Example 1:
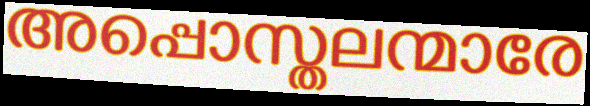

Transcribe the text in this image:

അപ്പൊസ്തലന്മാരേ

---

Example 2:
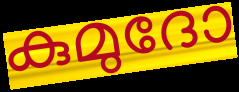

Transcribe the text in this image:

കുമുദോ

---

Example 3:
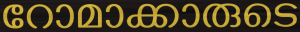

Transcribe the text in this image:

റോമാക്കാരുടെ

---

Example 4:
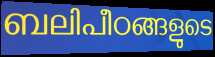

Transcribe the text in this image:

ബലിപീഠങ്ങളുടെ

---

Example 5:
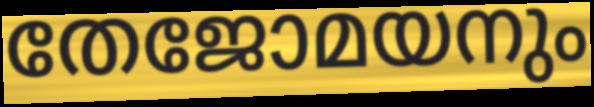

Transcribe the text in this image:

തേജോമയനും